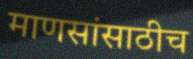
माणसांसाठीच